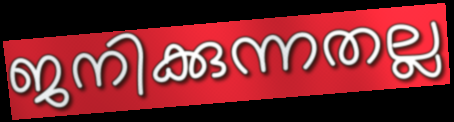
ജനിക്കുന്നതല്ല